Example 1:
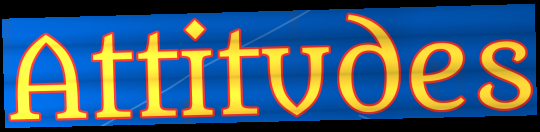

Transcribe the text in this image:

Attitudes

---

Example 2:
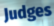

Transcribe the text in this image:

Judges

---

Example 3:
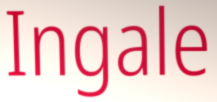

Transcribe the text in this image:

Ingale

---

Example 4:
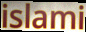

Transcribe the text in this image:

islami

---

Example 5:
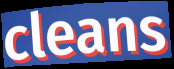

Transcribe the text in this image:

cleans